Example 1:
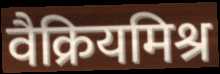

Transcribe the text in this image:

वैक्रियमिश्र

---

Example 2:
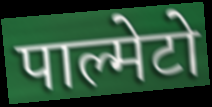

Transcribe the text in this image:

पाल्मेटो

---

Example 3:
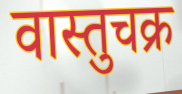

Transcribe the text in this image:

वास्तुचक्र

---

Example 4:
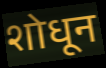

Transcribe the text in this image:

शोधून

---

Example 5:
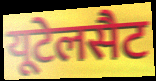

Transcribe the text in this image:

यूटेलसैट